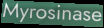
Myrosinase